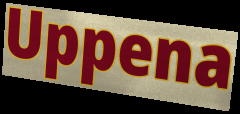
Uppena